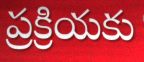
ప్రక్రియకు